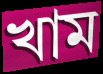
খাম